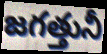
జగత్తునీ